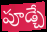
పూడ్చే